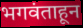
भगवंताहून